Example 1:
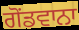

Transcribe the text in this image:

ਗੋਂਡਵਾਨਾ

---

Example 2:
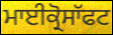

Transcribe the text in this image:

ਮਾਈਕ੍ਰੋਸਾੱਫਟ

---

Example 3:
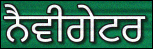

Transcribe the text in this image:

ਨੈਵੀਗੇਟਰ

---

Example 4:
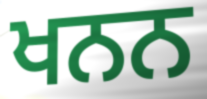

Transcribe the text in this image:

ਖਨਨ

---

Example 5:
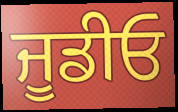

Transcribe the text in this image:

ਜੂਡੀਓ